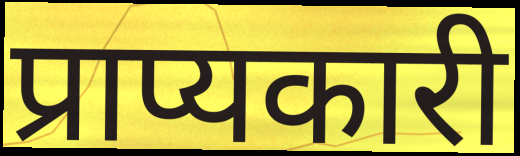
प्राप्यकारी